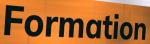
Formation